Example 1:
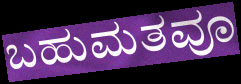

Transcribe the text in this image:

ಬಹುಮತವೂ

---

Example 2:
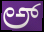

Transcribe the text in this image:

ಅ್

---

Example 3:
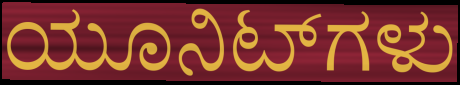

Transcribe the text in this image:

ಯೂನಿಟ್‌ಗಳು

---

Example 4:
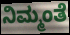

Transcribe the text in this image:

ನಿಮ್ಮಂತೆ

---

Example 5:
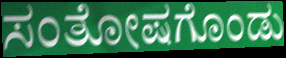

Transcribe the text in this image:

ಸಂತೋಷಗೊಂಡು